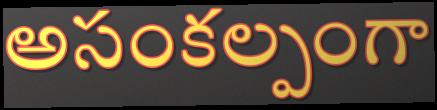
అసంకల్పంగా